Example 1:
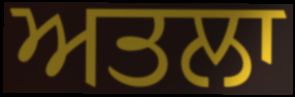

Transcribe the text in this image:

ਅਤਲਾ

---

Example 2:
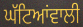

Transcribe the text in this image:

ਘੱਟਿਆਂਵਾਲੀ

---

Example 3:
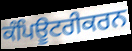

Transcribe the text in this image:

ਕੰਪਿਊਟਰੀਕਰਨ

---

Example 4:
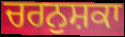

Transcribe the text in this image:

ਚਰਨੁਸ਼ਕਾ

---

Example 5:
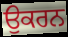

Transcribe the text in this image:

ਉਕਰਨ